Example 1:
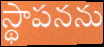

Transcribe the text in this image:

స్థాపనను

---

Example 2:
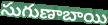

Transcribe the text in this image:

సుగుణాబాయి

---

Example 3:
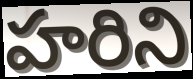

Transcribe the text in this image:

హరిని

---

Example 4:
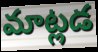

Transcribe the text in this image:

మాట్లడ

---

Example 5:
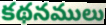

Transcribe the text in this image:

కథనములు